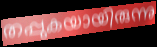
തപ്പുകയായിരുന്നു